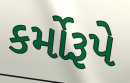
કર્મોરૂપે